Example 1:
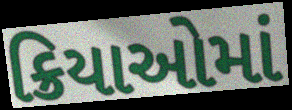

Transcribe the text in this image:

ક્રિયાઓમાં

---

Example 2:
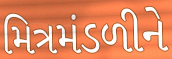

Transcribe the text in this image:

મિત્રમંડળીને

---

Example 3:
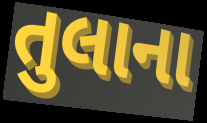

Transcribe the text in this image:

તુલાના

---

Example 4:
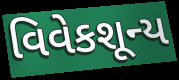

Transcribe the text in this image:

વિવેકશૂન્ય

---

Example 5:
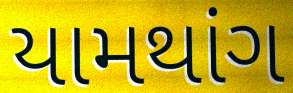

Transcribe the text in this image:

યામથાંગ